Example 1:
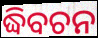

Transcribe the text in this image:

ଦ୍ଧିବଚନ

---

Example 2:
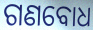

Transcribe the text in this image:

ଗଣବୋଧ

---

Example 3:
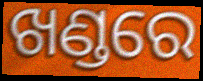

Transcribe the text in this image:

ଖଣ୍ଡରେ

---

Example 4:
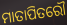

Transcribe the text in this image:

ମାତାପିତରୌ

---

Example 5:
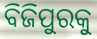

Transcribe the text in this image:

ବିଜିପୁରକୁ